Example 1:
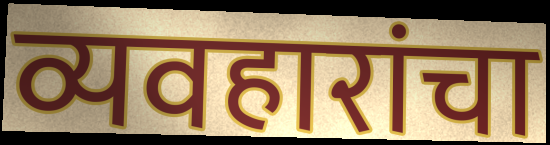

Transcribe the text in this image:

व्यवहारांचा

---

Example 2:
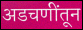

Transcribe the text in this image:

अडचणींतून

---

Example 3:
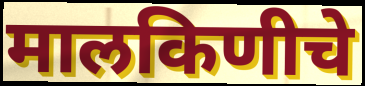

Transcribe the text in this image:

मालकिणीचे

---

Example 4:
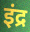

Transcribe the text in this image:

इंद्र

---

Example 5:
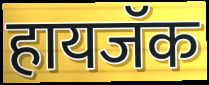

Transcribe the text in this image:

हायजॅक